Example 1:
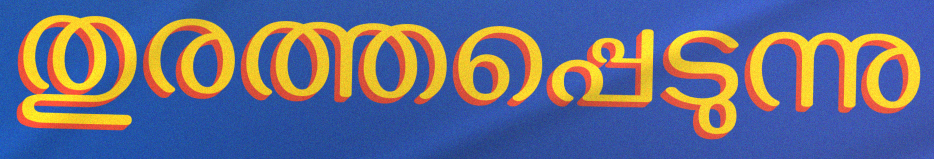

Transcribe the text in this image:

തുരത്തപ്പെടുന്നു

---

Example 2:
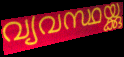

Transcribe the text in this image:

വ്യവസ്ഥയ്ക്കു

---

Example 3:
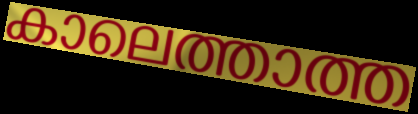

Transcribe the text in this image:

കാലെത്താത്ത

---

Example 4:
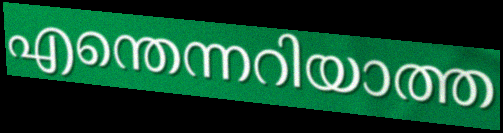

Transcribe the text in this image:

എന്തെന്നറിയാത്ത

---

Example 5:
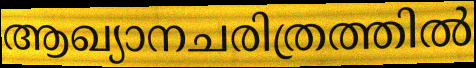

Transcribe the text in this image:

ആഖ്യാനചരിത്രത്തിൽ